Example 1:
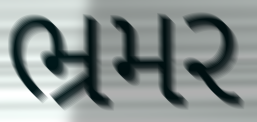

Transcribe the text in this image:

ભ્રમર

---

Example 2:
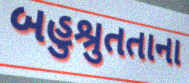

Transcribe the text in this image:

બહુશ્રુતતાના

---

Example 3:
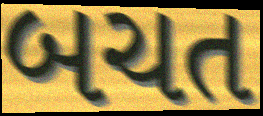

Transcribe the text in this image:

બચત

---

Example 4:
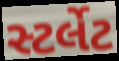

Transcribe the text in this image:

સ્ટર્લેટ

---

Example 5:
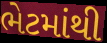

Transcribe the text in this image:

ભેટમાંથી